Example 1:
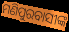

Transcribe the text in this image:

ମଣିପୁରବାସୀଙ୍କ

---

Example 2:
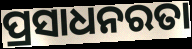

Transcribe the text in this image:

ପ୍ରସାଧନରତା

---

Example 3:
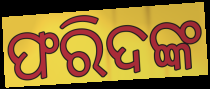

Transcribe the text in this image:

ଫରିଦଙ୍କ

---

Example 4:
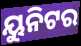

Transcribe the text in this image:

ୟୁନିଟର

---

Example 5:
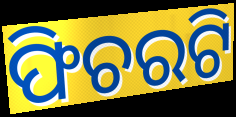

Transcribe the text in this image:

ଫିଚରଟି